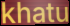
khatu